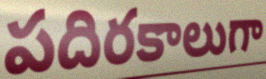
పదిరకాలుగా